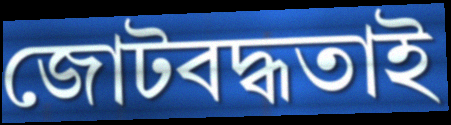
জোটবদ্ধতাই